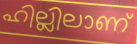
ഹില്ലിലാണ്